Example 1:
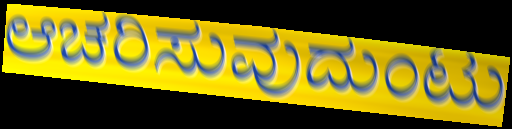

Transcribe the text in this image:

ಆಚರಿಸುವುದುಂಟು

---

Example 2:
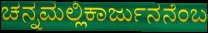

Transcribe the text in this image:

ಚನ್ನಮಲ್ಲಿಕಾರ್ಜುನನೆಂಬ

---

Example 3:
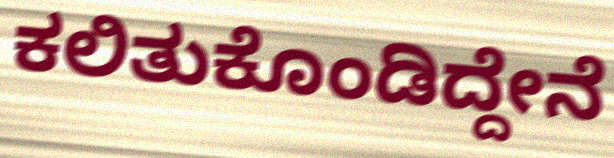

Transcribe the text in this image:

ಕಲಿತುಕೊಂಡಿದ್ದೇನೆ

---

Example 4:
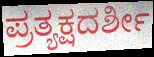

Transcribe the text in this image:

ಪ್ರತ್ಯಕ್ಷದರ್ಶೀ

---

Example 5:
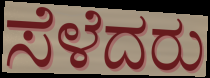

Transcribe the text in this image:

ಸೆಳೆದರು